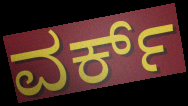
ವರ್ಕ್